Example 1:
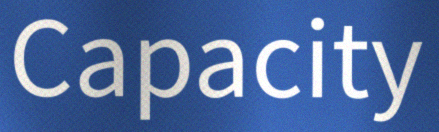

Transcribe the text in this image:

Capacity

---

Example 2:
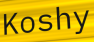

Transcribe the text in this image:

Koshy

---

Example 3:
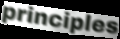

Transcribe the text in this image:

principles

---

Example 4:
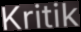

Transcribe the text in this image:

Kritik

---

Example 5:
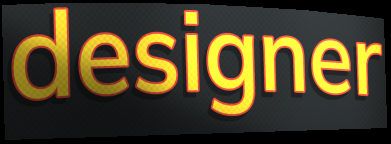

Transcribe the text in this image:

designer